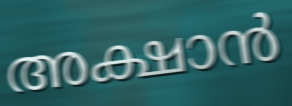
അക്ഷാൻ